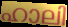
ഹാലി